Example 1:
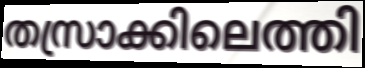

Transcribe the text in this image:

തസ്രാക്കിലെത്തി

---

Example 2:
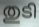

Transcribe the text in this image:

തുടി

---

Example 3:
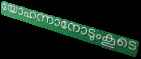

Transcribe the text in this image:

യോഹന്നാനോടുംകൂടെ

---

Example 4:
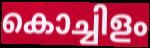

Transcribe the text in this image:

കൊച്ചിളം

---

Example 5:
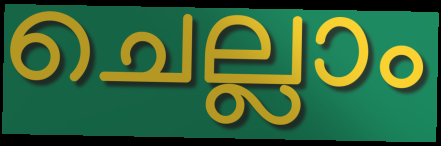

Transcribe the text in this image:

ചെല്ലാം